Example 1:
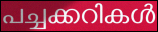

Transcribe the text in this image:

പച്ചക്കറികൾ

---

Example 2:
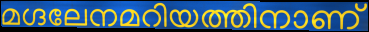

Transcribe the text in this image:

മഗ്ദലേനമറിയത്തിനാണ്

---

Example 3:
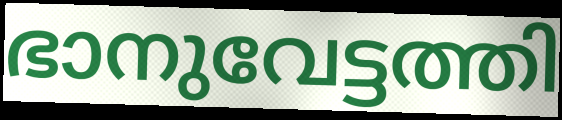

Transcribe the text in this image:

ഭാനുവേട്ടത്തി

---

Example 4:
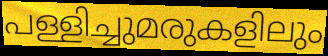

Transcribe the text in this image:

പള്ളിച്ചുമരുകളിലും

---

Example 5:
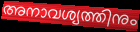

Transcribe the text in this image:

അനാവശ്യത്തിനും